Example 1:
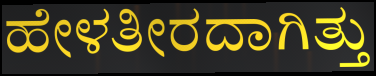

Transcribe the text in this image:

ಹೇಳತೀರದಾಗಿತ್ತು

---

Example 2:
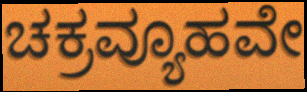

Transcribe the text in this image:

ಚಕ್ರವ್ಯೂಹವೇ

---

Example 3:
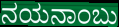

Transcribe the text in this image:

ನಯನಾಂಬು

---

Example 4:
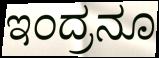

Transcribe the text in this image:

ಇಂದ್ರನೂ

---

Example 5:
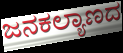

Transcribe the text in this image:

ಜನಕಲ್ಯಾಣದ